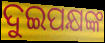
ଦୁଇପକ୍ଷଙ୍କ